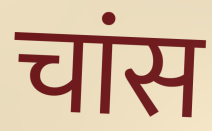
चांस